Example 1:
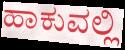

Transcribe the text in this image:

ಹಾಕುವಲ್ಲಿ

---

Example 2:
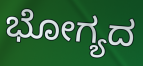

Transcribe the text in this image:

ಭೋಗ್ಯದ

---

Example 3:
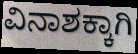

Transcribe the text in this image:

ವಿನಾಶಕ್ಕಾಗಿ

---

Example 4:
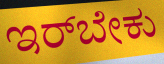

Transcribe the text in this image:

ಇರ್‌ಬೇಕು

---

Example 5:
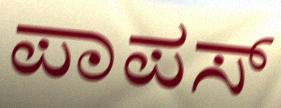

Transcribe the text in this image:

ಪಾಪಸ್